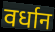
वर्धान